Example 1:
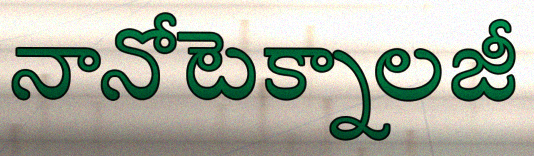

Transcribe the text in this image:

నానోటెక్నాలజీ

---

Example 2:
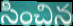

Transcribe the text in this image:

సించిన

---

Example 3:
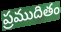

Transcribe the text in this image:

ప్రముదితం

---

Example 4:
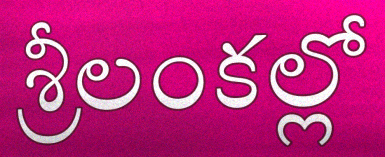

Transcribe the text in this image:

శ్రీలంకల్లో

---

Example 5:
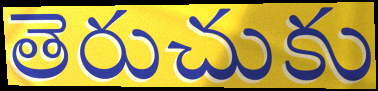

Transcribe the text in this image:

తెరుచుకు